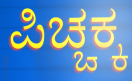
ಪಿಚ್ಚಕ್ಕ